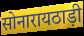
सोनारायठाड़ी